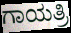
ಗಾಯತ್ರಿ